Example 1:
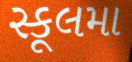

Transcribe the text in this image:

સ્કૂલમા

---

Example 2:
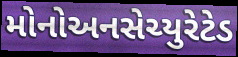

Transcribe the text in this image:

મોનોઅનસેચ્યુરેટેડ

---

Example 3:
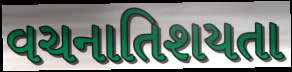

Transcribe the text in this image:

વચનાતિશયતા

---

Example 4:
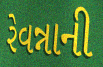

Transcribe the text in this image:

રેવન્નાની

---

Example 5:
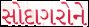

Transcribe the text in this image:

સોદાગરોને